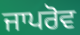
ਜਾਪਰੋਵ